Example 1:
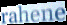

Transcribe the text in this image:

rahene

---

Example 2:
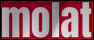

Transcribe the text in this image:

molat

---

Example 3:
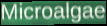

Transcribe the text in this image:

Microalgae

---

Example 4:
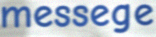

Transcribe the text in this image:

messege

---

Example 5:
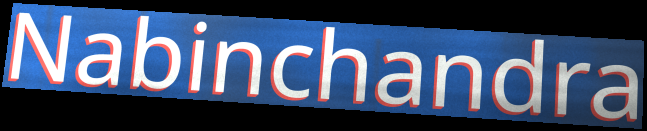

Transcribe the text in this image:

Nabinchandra